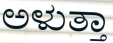
ಅಳುತ್ತಾ